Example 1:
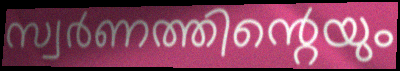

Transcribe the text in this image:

സ്വർണത്തിന്റെയും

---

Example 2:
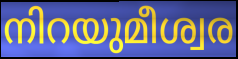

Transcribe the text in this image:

നിറയുമീശ്വര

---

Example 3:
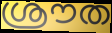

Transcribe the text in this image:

ശ്രൗത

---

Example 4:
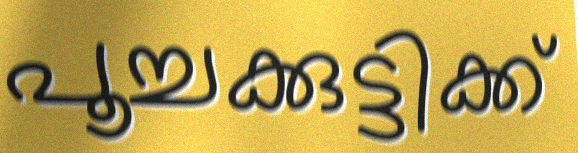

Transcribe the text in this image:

പൂച്ചക്കുട്ടിക്ക്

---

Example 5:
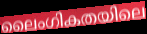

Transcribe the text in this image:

ലൈംഗികതയിലെ